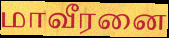
மாவீரனை